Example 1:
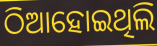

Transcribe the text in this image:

ଠିଆହୋଇଥିଲି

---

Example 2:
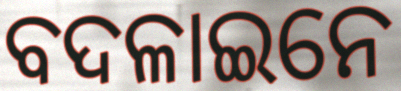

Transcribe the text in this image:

ବଦଳାଇନେ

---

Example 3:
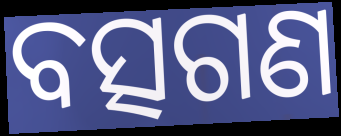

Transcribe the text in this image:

ବତ୍ସଗଣ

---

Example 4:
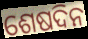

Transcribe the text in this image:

ଶେଷଦିନ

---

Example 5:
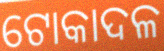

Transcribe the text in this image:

ଟୋକାଦଳ